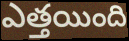
ఎత్తయింది